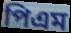
পিএম